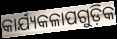
କାର୍ଯ୍ୟକଳାପଗୁଡ଼ିକ